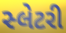
સ્લેટરી